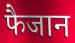
फैजान